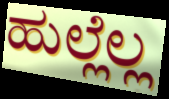
ಹುಲ್ಲೆಲ್ಲ